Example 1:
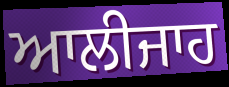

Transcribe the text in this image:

ਆਲੀਜਾਹ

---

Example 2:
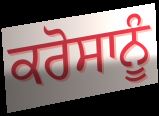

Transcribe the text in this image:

ਕਰੋਸਾਨੂੰ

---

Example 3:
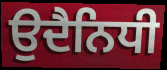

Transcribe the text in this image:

ਉਦੈਨਿਧੀ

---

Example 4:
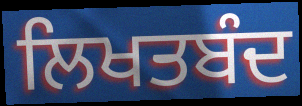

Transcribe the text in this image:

ਲਿਖਤਬੰਦ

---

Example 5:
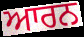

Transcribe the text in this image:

ਆਰਨ